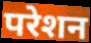
परेशन